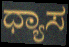
ಧ್ಯಾಸ